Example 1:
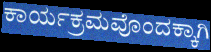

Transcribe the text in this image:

ಕಾರ್ಯಕ್ರಮವೊಂದಕ್ಕಾಗಿ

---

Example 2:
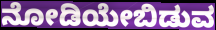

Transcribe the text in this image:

ನೋಡಿಯೇಬಿಡುವ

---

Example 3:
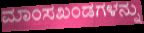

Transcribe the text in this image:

ಮಾಂಸಖಂಡಗಳನ್ನು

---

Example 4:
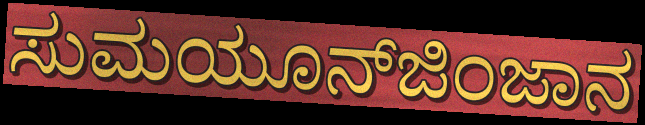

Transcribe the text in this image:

ಸುಮಯೂನ್‍ಜಿಂಜಾನ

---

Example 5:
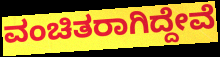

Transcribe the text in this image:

ವಂಚಿತರಾಗಿದ್ದೇವೆ